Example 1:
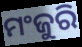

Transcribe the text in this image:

ମଂଜୁରି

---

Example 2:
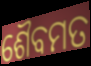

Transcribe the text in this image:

ଶୈବମତ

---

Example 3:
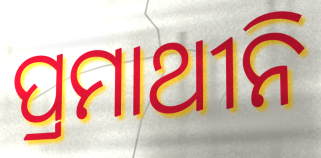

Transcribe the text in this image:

ପ୍ରମାଥୀନି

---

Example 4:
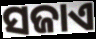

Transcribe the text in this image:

ସଜାଏ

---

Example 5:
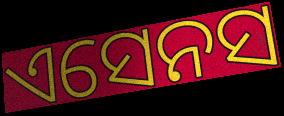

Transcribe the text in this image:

ଏସେନସ